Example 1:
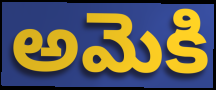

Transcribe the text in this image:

అమెకి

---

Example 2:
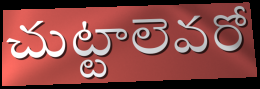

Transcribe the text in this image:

చుట్టాలెవరో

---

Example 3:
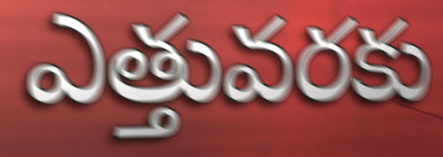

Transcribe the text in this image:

ఎత్తువరకు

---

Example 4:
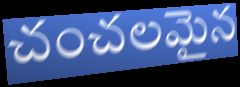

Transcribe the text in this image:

చంచలమైన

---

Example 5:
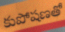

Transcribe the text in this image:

కుపోషణతో